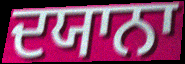
ਦਯਾਨਾ